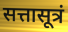
सत्तासूत्रं